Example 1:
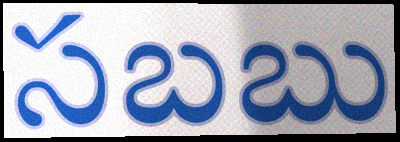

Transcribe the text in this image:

సబబు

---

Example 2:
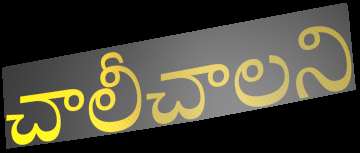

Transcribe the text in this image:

చాలీచాలని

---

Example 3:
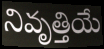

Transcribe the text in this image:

నివృత్తియే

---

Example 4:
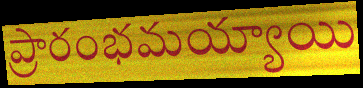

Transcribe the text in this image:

ప్రారంభమయ్యాయి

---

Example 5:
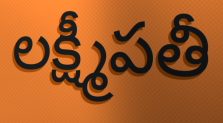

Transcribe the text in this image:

లక్ష్మీపతీ